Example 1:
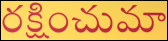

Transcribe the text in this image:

రక్షించుమా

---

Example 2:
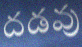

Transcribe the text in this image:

దడవు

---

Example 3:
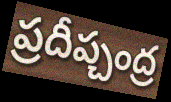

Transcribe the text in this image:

ప్రదీప్చంద్ర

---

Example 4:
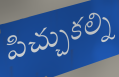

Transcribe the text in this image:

పిచ్చుకల్ని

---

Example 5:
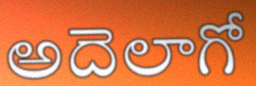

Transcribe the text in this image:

అదెలాగో